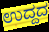
ಉದ್ದದ